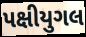
પક્ષીયુગલ